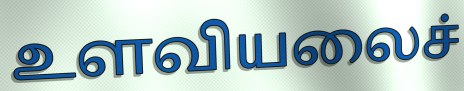
உளவியலைச்